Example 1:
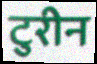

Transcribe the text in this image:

टुरीन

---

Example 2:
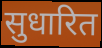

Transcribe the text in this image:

सुधारित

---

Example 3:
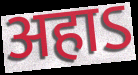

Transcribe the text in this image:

अहाऽ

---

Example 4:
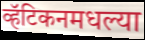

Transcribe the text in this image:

व्हॅटिकनमधल्या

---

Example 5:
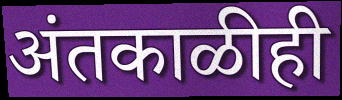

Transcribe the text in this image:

अंतकाळीही